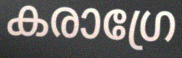
കരാഗ്രേ